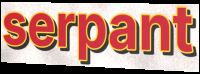
serpant